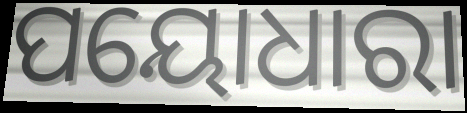
ପୟୋଧାରା